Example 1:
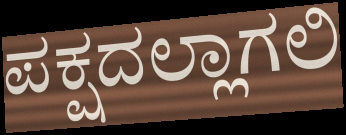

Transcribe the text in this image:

ಪಕ್ಷದಲ್ಲಾಗಲಿ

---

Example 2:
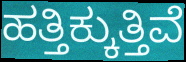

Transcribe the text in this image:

ಹತ್ತಿಕ್ಕುತ್ತಿವೆ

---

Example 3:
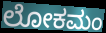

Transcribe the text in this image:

ಲೋಕಮಂ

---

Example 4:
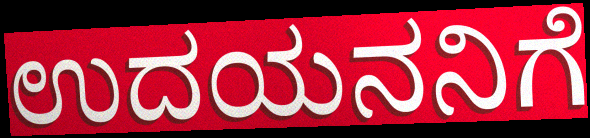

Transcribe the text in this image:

ಉದಯನನಿಗೆ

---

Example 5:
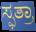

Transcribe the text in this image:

ಸ್ಫತ್ರಾ